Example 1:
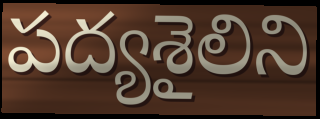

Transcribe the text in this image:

పద్యశైలిని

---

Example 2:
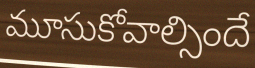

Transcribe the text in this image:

మూసుకోవాల్సిందే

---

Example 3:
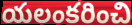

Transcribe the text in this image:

యలంకరించి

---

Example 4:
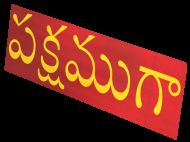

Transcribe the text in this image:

పక్షముగా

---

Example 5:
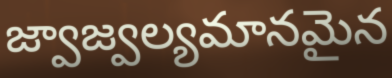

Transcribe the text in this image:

జ్వాజ్వల్యమానమైన